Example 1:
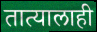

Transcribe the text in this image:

तात्यालाही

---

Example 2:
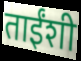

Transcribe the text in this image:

ताईंशी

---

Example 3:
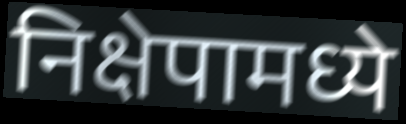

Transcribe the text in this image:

निक्षेपामध्ये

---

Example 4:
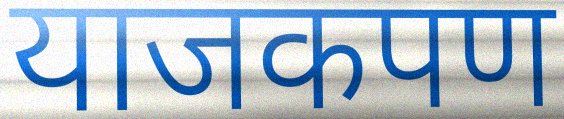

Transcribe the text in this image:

याजकपण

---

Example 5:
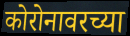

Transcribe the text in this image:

कोरोनावरच्या